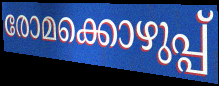
രോമക്കൊഴുപ്പ്